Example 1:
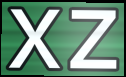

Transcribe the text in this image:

xz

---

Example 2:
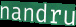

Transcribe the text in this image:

nandru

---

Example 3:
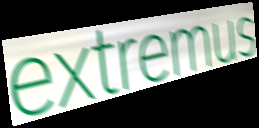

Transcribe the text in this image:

extremus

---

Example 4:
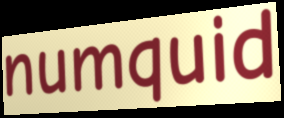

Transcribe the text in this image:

numquid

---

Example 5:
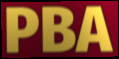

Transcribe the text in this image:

PBA